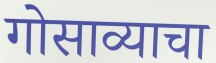
गोसाव्याचा